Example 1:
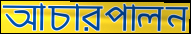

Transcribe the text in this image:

আচারপালন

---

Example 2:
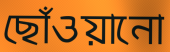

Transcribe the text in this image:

ছোঁওয়ানো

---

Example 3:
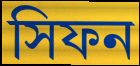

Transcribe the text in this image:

সিফন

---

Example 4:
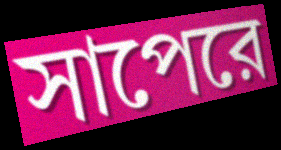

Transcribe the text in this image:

সাপেরে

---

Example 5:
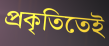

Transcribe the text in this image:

প্রকৃতিতেই